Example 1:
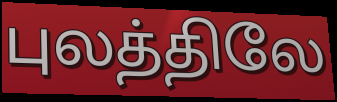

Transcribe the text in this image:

புலத்திலே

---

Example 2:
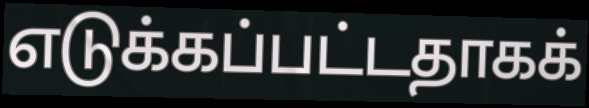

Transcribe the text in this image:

எடுக்கப்பட்டதாகக்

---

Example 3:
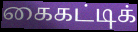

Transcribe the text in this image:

கைகட்டிக்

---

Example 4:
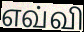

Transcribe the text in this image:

எவ்வி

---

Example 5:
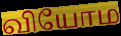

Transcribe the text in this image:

வியோம